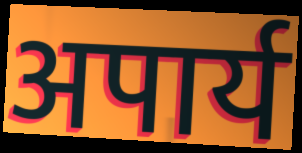
अपार्य